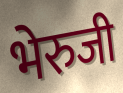
भेरुजी